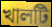
খালটি